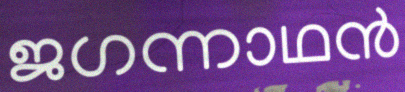
ജഗന്നാഥൻ